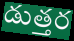
డుత్తర